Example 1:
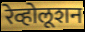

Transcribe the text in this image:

रेव्होलूशन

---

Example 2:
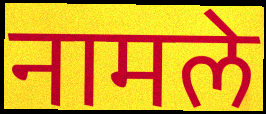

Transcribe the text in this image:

नामले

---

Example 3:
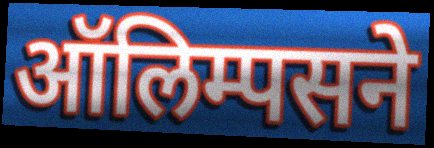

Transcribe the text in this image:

ऑलिम्पसने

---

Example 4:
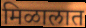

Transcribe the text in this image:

मिळालात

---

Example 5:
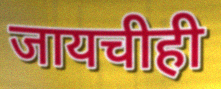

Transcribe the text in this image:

जायचीही